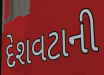
દેશવટાની